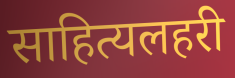
साहित्यलहरी